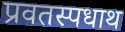
प्रवतस्पधाथ